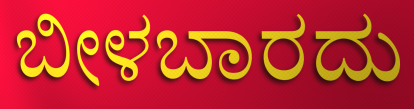
ಬೀಳಬಾರದು